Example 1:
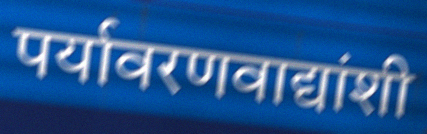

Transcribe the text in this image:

पर्यावरणवाद्यांशी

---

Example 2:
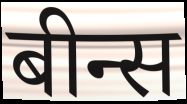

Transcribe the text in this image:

बीन्स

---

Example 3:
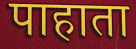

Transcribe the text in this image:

पाहाता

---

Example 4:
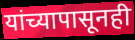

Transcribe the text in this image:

यांच्यापासूनही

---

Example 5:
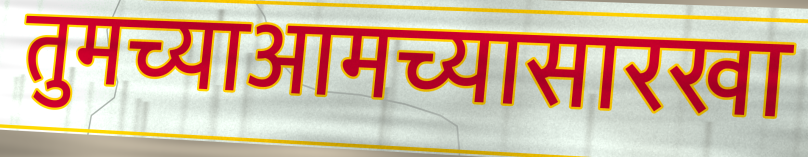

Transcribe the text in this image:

तुमच्याआमच्यासारखा